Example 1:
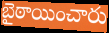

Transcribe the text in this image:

బైఠాయించారు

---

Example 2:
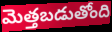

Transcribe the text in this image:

మెత్తబడుతోంది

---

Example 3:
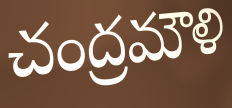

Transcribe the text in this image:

చంద్రమౌళి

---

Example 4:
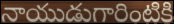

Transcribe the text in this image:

నాయుడుగారింటికి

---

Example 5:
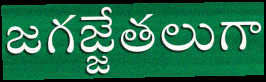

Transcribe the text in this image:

జగజ్జేతలుగా